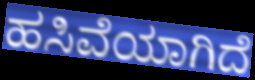
ಹಸಿವೆಯಾಗಿದೆ